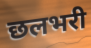
छलभरी